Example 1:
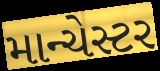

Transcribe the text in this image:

માન્ચેસ્ટર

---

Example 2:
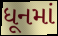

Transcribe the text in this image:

ધૂનમાં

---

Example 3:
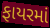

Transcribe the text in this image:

ફાયરમાં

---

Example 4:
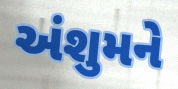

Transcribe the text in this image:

અંશુમને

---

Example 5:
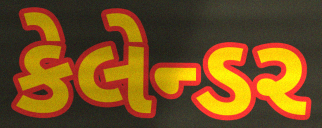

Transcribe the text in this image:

કેલેન્ડર